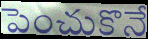
పెంచుకొనే